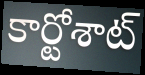
కార్టోశాట్